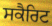
ਸਕੈਰਿਟ